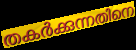
തകർക്കുന്നതിനെ